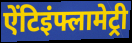
ऐंटिइंफ्लामेट्री